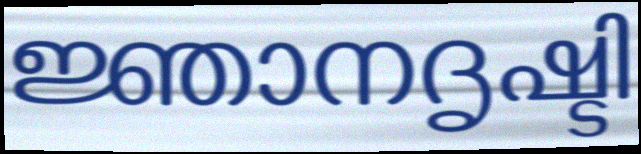
ജ്ഞാനദൃഷ്ടി